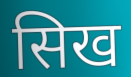
सिख